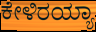
ಕೇಳಿರಯ್ಯಾ